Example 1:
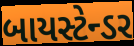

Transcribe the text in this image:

બાયસ્ટેન્ડર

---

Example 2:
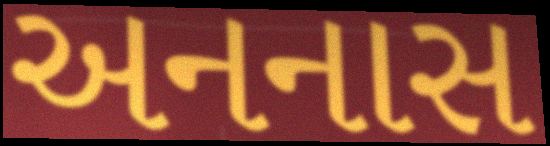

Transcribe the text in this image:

અનનાસ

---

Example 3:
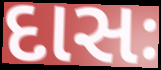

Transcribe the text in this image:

દાસઃ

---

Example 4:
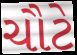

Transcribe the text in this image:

ચૌટે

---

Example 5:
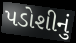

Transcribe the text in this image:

પડોશીનું